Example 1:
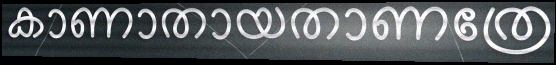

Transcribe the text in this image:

കാണാതായതാണത്രേ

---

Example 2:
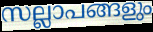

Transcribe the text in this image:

സല്ലാപങ്ങളും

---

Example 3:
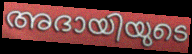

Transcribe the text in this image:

അദായിയുടെ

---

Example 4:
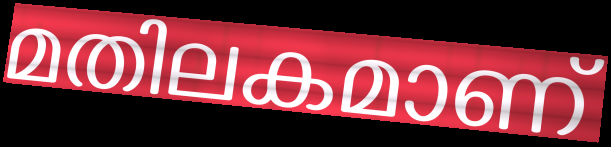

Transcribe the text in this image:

മതിലകമാണ്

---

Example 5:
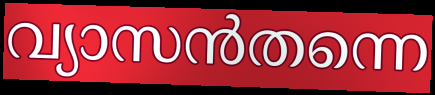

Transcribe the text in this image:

വ്യാസൻതന്നെ